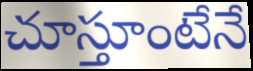
చూస్తూంటేనే